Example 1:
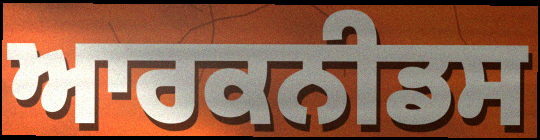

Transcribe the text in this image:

ਆਰਕਨੀਡਸ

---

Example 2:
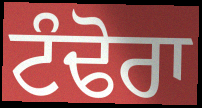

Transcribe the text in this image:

ਟੰਢੋਰਾ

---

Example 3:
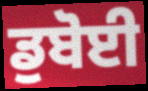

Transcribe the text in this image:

ਡੁਬੋਈ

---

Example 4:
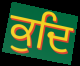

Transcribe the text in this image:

ਕੁਦਿ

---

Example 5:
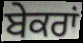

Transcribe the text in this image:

ਬੇਕਰਾਂ